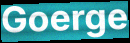
Goerge